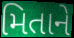
મિતાને